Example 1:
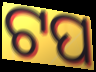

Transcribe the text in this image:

ଟପ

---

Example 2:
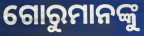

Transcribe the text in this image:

ଗୋରୁମାନଙ୍କୁ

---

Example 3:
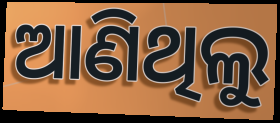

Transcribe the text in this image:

ଆଣିଥିଲୁ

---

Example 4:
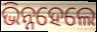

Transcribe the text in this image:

ଭିନ୍ନହେଲେ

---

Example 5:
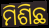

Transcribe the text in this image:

ମିଶିଛ